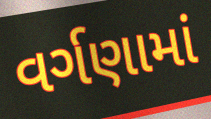
વર્ગણામાં